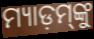
ମ୍ୟାଡ଼ମ୍‌ଙ୍କୁ